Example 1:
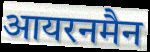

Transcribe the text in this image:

आयरनमैन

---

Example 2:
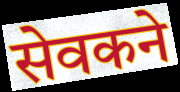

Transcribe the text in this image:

सेवकने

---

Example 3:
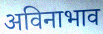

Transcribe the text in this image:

अविनाभाव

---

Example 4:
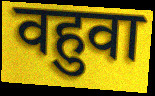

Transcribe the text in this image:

वहुवा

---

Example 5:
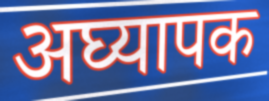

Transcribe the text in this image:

अघ्यापक